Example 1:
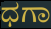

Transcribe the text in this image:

ಧಗಾ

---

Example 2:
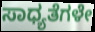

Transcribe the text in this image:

ಸಾಧ್ಯತೆಗಳೇ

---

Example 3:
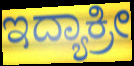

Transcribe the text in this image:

ಇದ್ಯಾಕ್ರೀ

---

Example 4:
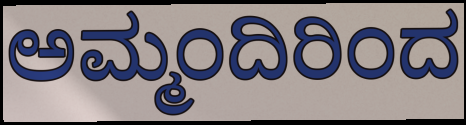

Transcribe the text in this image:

ಅಮ್ಮಂದಿರಿಂದ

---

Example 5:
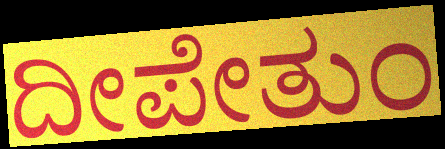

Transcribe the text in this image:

ದೀಪೇತುಂ